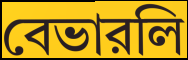
বেভারলি